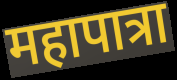
महापात्रा